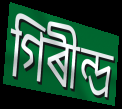
গিৰীন্দ্ৰ